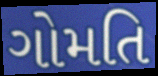
ગોમતિ